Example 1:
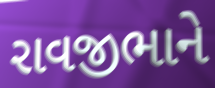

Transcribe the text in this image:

રાવજીભાને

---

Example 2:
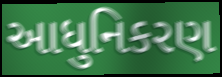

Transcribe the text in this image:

આધુનિકરણ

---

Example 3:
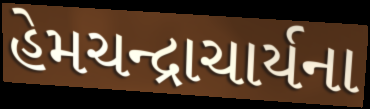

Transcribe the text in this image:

હેમચન્દ્રાચાર્યના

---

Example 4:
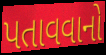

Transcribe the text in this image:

પતાવવાનો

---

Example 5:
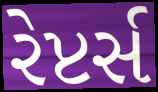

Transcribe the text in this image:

રેપ્ટર્સ